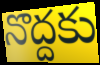
నొద్దకు